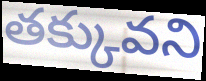
తక్కువని